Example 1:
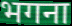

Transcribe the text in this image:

भगना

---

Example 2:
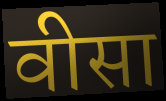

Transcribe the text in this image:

वीसा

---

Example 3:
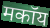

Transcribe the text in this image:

मकॉय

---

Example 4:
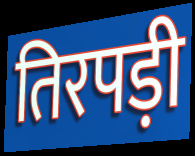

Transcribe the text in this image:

तिरपड़ी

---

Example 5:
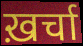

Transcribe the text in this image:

ख़र्चा